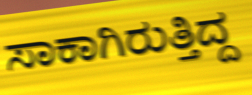
ಸಾಕಾಗಿರುತ್ತಿದ್ದ